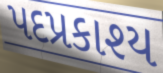
પદપ્રકાશ્ય